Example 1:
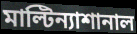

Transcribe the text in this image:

মাল্টিন্যাশানাল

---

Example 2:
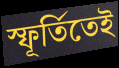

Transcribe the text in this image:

স্ফূর্তিতেই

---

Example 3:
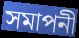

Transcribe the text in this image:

সমাপনী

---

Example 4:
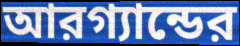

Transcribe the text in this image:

আরগ্যান্ডের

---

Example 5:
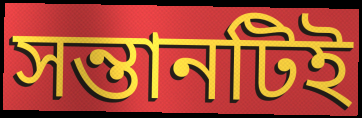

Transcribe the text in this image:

সন্তানটিই